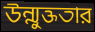
উন্মুক্ততার